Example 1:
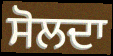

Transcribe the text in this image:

ਸੋਲਦਾ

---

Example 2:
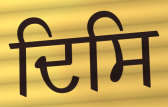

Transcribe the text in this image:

ਦਿਸਿ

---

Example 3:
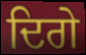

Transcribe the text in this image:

ਦਿਗੇ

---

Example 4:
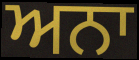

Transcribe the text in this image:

ਅਨਾ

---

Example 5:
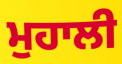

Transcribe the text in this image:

ਮੁਹਾਲੀ